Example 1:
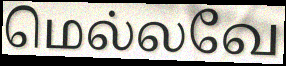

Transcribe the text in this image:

மெல்லவே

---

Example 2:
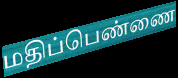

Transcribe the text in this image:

மதிப்பெண்ணை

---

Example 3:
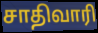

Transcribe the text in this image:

சாதிவாரி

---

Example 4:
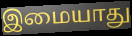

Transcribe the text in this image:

இமையாது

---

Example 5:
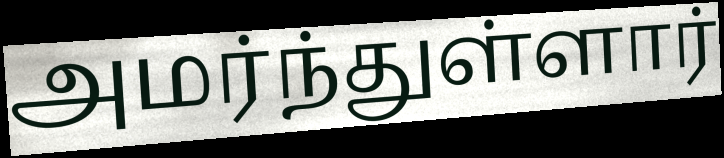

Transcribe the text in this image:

அமர்ந்துள்ளார்